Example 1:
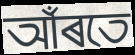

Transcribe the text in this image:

আঁৰতে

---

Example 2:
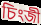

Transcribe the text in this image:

চিংজী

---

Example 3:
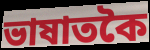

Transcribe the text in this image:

ভাষাতকৈ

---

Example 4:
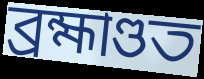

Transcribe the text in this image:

ব্ৰহ্মাণ্ডত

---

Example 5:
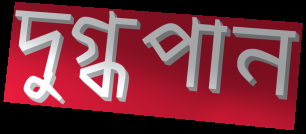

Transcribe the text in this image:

দুগ্ধপান